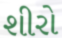
શીરો